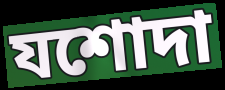
যশোদা